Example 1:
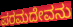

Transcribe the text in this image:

ಪರಮದೇವನು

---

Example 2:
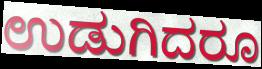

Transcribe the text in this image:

ಉಡುಗಿದರೂ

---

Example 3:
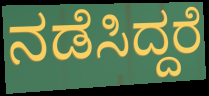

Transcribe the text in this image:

ನಡೆಸಿದ್ದರೆ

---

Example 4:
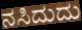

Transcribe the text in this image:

ನಸಿದುದು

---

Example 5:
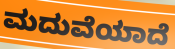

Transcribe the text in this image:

ಮದುವೆಯಾದೆ